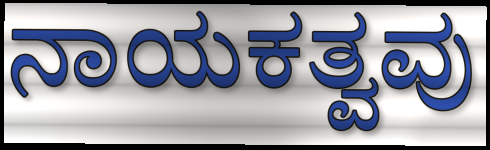
ನಾಯಕತ್ವವು